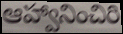
ఆహ్వానించిరి